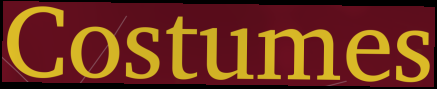
Costumes